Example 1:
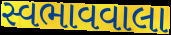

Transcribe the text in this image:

સ્વભાવવાલા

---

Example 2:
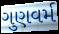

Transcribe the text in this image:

ગુણવર્મ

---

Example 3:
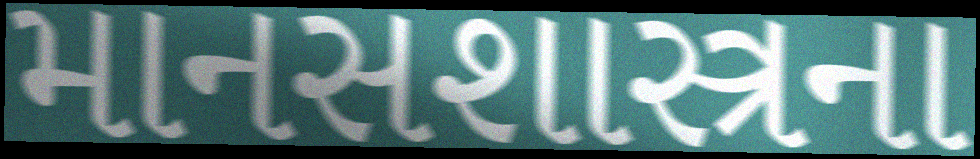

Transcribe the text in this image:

માનસશાસ્ત્રના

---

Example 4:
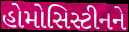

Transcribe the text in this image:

હોમોસિસ્ટીનને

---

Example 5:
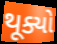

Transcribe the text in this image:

થૂક્યો